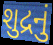
શુદ્રનું